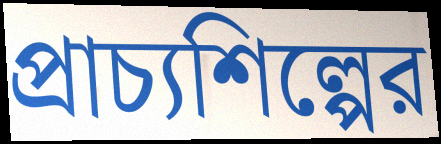
প্রাচ্যশিল্পের